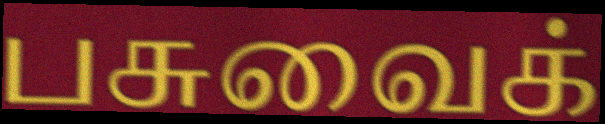
பசுவைக்